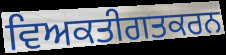
ਵਿਅਕਤੀਗਤਕਰਨ